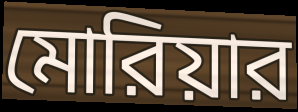
মোরিয়ার